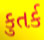
કુતર્ક